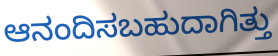
ಆನಂದಿಸಬಹುದಾಗಿತ್ತು